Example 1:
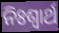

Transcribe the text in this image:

ନିଃଶ୍ୱାର୍ଥ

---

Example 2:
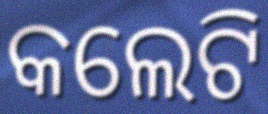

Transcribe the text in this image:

କଲେଟି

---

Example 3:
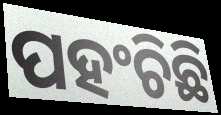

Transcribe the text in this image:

ପହଂଚିଛି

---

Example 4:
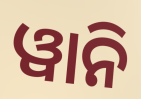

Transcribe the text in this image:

ୱାନି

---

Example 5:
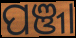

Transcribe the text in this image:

ପଞ୍ଜା